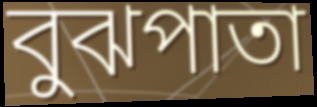
বুঝপাতা